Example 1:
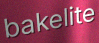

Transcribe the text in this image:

bakelite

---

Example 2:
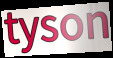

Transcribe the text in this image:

tyson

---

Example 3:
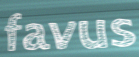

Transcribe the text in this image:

favus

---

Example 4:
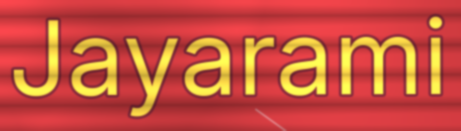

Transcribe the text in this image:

Jayarami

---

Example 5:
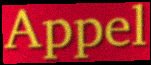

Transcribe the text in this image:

Appel